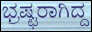
ಭ್ರಷ್ಟರಾಗಿದ್ದ